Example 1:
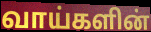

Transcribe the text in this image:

வாய்களின்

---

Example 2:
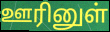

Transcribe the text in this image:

ஊரினுள்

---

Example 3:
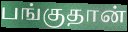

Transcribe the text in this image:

பங்குதான்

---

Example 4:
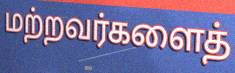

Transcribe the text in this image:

மற்றவர்களைத்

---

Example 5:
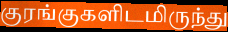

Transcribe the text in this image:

குரங்குகளிடமிருந்து